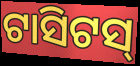
ଟାସିଟସ୍